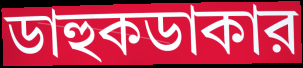
ডাহুকডাকার